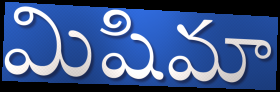
మిషిమా